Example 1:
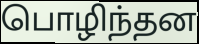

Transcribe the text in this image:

பொழிந்தன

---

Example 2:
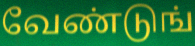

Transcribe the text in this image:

வேண்டுங்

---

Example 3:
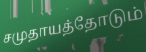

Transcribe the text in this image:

சமுதாயத்தோடும்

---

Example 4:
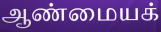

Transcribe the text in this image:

ஆண்மையக்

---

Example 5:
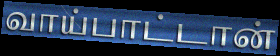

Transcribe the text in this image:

வாய்பாட்டான்